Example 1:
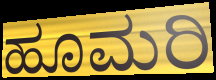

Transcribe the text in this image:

ಹೂಮರಿ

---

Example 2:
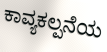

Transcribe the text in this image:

ಕಾವ್ಯಕಲ್ಪನೆಯ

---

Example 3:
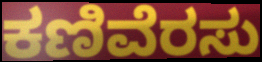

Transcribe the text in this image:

ಕಣಿವೆರಸು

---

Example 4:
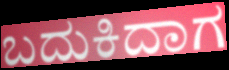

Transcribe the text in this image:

ಬದುಕಿದಾಗ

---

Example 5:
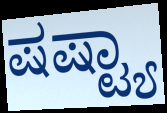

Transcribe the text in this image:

ಷಷ್ಟ್ಯಾ